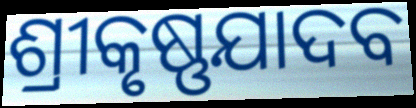
ଶ୍ରୀକୃଷ୍ଣଯାଦବ